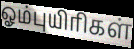
ஓம்புயிரிகள்